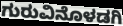
ಗುರುವಿನೊಳಡಗಿ